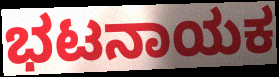
ಭಟನಾಯಕ